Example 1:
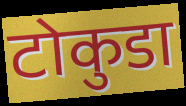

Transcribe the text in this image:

टोकुडा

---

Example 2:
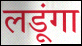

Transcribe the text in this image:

लडूंगा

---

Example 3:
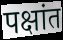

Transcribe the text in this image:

पक्षांत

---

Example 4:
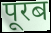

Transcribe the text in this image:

पूरब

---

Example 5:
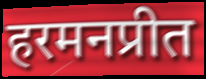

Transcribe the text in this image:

हरमनप्रीत